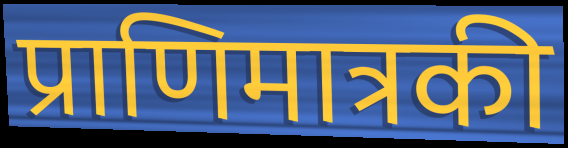
प्राणिमात्रकी